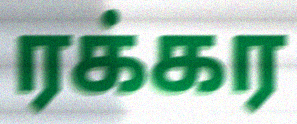
ரக்கர